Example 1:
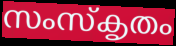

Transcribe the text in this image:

സംസ്‌കൃതം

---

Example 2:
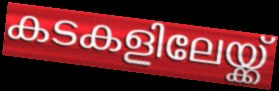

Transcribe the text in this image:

കടകളിലേയ്ക്ക്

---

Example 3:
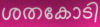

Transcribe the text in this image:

ശതകോടി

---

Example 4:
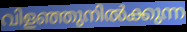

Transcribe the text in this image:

വിളഞ്ഞുനിൽക്കുന്ന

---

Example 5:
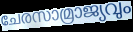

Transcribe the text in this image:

ചേരസാമ്രാജ്യവും